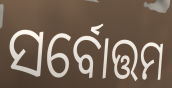
ସର୍ବୋତ୍ତମ